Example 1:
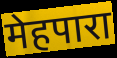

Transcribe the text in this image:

मेहपारा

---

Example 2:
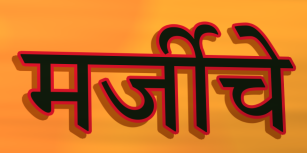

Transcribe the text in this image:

मर्जीचे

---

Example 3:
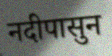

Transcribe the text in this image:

नदीपासुन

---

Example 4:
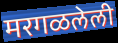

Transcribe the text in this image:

मरगळलेली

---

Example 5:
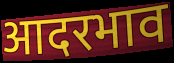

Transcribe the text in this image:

आदरभाव